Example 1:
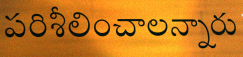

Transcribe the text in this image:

పరిశీలించాలన్నారు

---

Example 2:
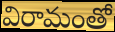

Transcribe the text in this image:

విరామంతో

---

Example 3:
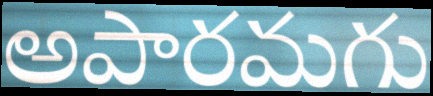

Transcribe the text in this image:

అపారమగు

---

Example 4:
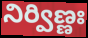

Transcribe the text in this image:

నిర్విణ్ణః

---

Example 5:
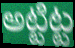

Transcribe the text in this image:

అట్టిట్ట